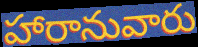
హారానువారు